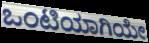
ಒಂಟಿಯಾಗಿಯೇ